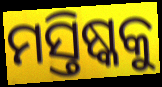
ମସ୍ତିଷ୍କକୁ